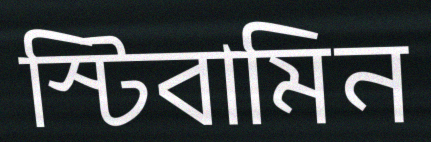
স্টিবামিন